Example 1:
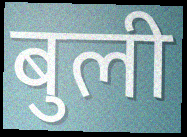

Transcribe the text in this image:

बुली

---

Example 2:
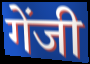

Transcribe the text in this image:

गेंजी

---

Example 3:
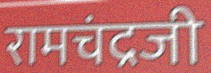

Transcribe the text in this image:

रामचंद्रजी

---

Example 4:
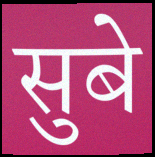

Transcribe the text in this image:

सुबे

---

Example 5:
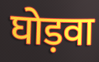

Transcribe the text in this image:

घोड़वा